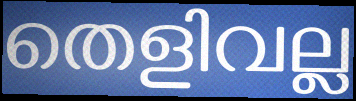
തെളിവല്ല